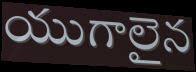
యుగాలైన